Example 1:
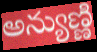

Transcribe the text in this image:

అన్యుణ్ణి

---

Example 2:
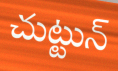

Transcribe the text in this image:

చుట్టున్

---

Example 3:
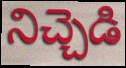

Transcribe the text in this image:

నిచ్చెడి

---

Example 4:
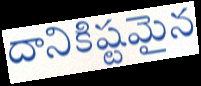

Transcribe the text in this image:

దానికిష్టమైన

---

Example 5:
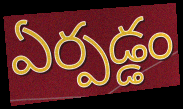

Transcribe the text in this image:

ఏర్పడ్డం